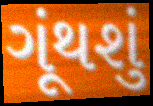
ગૂંથશું